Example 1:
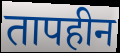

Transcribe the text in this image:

तापहीन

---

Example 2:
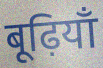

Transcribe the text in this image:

बूढ़ियाँ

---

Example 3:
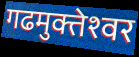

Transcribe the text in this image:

गढमुक्तेश्वर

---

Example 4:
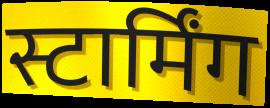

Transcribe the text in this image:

स्टार्मिंग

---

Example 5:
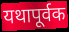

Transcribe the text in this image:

यथापूर्वक